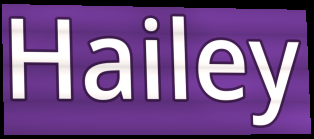
Hailey